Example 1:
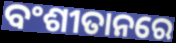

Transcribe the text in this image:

ବଂଶୀତାନରେ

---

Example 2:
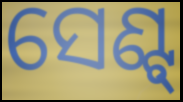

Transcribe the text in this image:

ସେଣ୍ଟ୍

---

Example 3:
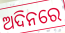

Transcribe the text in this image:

ଅଦିନରେ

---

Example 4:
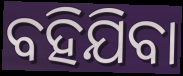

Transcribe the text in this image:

ବହିଯିବା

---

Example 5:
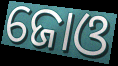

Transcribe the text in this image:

ଜୋଓ